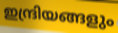
ഇന്ദ്രിയങ്ങളും